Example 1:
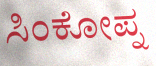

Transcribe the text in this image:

ಸಿಂಕೋಪ್ನ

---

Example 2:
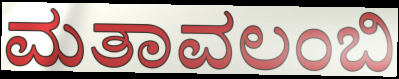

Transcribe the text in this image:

ಮತಾವಲಂಬಿ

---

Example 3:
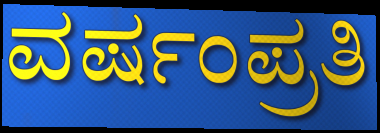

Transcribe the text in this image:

ವರ್ಷಂಪ್ರತಿ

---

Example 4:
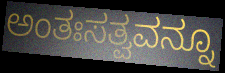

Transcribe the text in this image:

ಅಂತಃಸತ್ವವನ್ನೂ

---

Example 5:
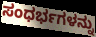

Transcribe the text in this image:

ಸಂಧರ್ಭಗಳನ್ನು